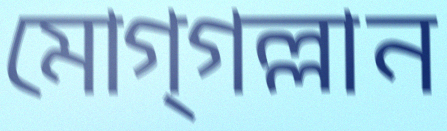
মোগ্‌গল্লান